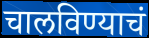
चालविण्याचं